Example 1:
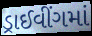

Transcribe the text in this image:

ડ્રાઈવીંગમાં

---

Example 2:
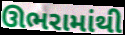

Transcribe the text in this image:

ઊભરામાંથી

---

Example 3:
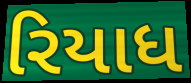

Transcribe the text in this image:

રિયાધ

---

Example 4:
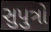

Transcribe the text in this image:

સુપુત્રો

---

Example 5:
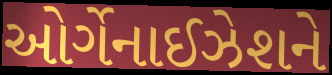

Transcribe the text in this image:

ઓર્ગેનાઈઝેશને